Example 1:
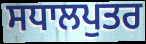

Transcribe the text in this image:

ਸਧਾਲਪੁਤਰ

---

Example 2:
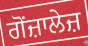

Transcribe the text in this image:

ਗੋਂਜ਼ਾਲੇਜ਼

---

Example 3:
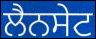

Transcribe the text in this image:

ਲੈਨਸੇਟ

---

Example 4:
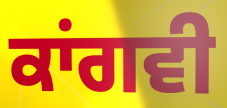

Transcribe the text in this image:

ਕਾਂਗਵੀ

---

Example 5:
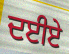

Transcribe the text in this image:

ਦਈਏ